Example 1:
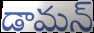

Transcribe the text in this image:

డామన్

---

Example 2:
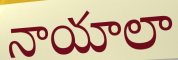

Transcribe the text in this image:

నాయాలా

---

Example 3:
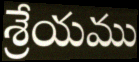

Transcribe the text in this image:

శ్రేయము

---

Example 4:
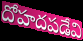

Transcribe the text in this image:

దోహదపడేవి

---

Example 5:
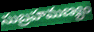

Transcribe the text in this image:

సుబ్రహమణ్యం